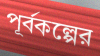
পূর্বকল্পের